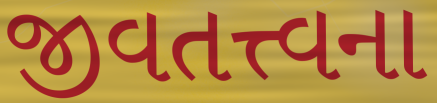
જીવતત્ત્વના